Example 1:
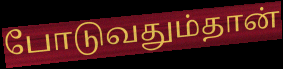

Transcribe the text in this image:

போடுவதும்தான்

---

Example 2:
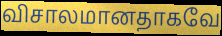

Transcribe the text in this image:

விசாலமானதாகவே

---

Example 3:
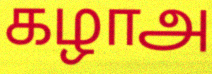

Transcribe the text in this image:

கழாஅ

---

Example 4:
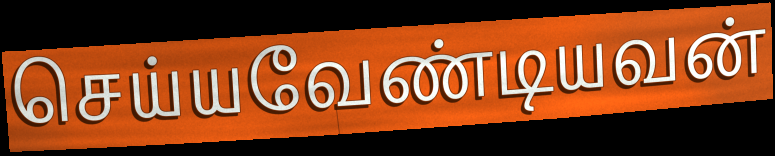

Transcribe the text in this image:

செய்யவேண்டியவன்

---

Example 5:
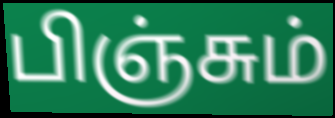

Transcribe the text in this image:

பிஞ்சும்